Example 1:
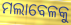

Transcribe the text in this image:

ମଲାବେଳକୁ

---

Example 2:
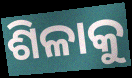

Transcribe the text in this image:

ଶିଳାକୁ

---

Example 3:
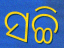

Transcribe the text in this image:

ସଚ୍ଚି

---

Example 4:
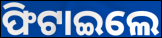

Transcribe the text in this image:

ଫିଟାଇଲେ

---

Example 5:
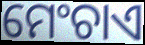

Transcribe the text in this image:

ମେଂଚାଏ